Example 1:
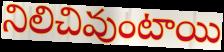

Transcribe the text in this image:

నిలిచివుంటాయి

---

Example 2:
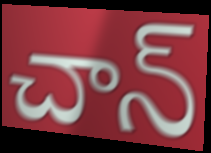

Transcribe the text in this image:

చాన్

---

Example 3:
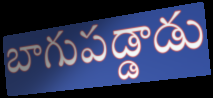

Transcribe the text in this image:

బాగుపడ్డాడు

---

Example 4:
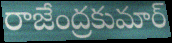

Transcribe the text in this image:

రాజేంద్రకుమార్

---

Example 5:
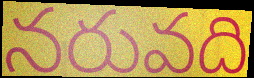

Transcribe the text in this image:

నరువది